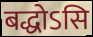
बद्धोऽसि